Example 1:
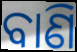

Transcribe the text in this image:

ବାଣି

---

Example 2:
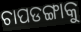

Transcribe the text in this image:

ଚାପଡଙ୍ଗାକୁ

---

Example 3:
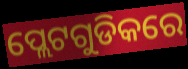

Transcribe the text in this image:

ପ୍ଲେଟଗୁଡିକରେ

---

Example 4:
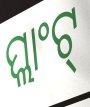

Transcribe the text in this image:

ପ୍ଲାଂଟ୍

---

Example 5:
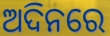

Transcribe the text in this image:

ଅଦିନରେ